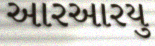
આરઆરયુ